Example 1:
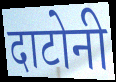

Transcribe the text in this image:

दाटोनी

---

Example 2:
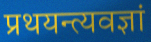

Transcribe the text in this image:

प्रथयन्त्यवज्ञां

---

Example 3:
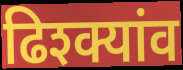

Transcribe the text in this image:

ढिश्क्यांव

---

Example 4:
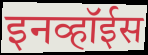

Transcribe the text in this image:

इनव्हॉईस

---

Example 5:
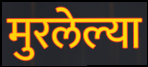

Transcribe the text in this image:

मुरलेल्या